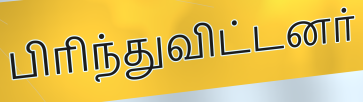
பிரிந்துவிட்டனர்